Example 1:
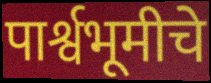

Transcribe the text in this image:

पार्श्वभूमीचे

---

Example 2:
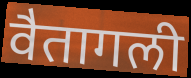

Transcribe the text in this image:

वैतागली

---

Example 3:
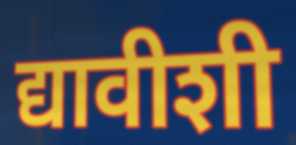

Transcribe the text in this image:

द्यावीशी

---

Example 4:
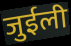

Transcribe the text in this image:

जुईली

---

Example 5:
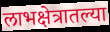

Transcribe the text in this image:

लाभक्षेत्रातल्या